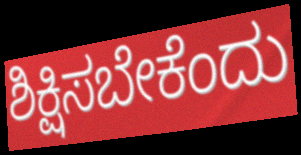
ಶಿಕ್ಷಿಸಬೇಕೆಂದು